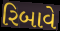
રિબાવે